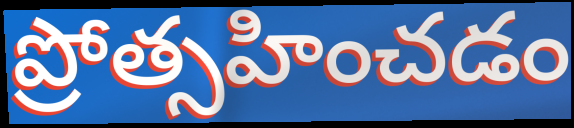
ప్రోత్సహించడం